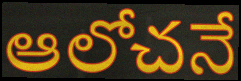
ఆలోచనే